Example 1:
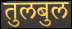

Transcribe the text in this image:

तुलबुल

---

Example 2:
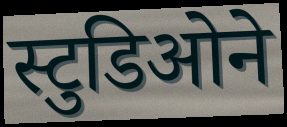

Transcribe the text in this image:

स्टुडिओने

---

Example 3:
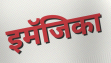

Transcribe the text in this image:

इमॅजिका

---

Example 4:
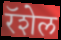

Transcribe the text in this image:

रॅशेल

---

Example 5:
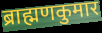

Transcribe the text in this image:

ब्राह्मणकुमार